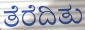
ತೆರೆದಿತು